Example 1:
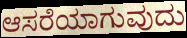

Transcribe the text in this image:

ಆಸರೆಯಾಗುವುದು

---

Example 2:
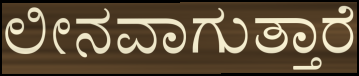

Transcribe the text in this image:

ಲೀನವಾಗುತ್ತಾರೆ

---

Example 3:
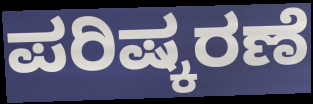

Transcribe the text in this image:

ಪರಿಷ್ಕರಣೆ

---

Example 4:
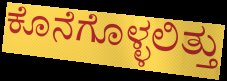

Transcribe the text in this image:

ಕೊನೆಗೊಳ್ಳಲಿತ್ತು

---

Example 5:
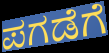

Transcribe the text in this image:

ಪಗಡೆಗೆ